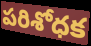
పరిశోధక